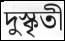
দুস্কৃতী